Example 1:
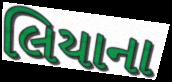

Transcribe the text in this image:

લિયાના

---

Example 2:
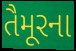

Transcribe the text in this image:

તૈમૂરના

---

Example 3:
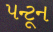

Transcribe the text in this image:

પન્ટૂન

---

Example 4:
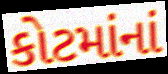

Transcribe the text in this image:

કોટમાંનાં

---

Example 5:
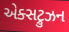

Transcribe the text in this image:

એક્સટ્રુઝન